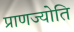
प्राणज्योति